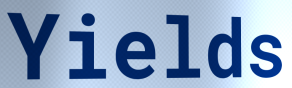
Yields